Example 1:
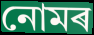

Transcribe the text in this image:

নোমৰ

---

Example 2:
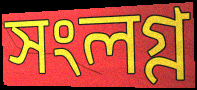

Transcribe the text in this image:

সংলগ্ন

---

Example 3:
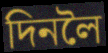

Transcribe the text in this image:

দিনলৈ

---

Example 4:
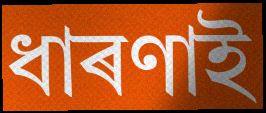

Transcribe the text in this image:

ধাৰণাই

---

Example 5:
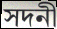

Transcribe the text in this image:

সদনী